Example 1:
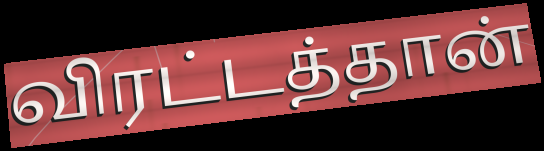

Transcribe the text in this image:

விரட்டத்தான்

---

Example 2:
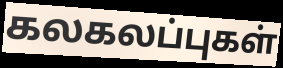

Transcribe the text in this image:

கலகலப்புகள்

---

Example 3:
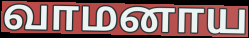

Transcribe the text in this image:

வாமனாய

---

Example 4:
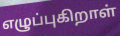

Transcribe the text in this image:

எழுப்புகிறாள்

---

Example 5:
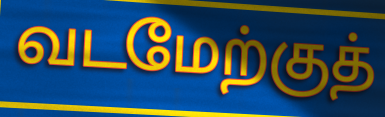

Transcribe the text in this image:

வடமேற்குத்